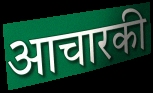
आचारकी